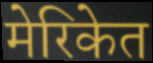
मेरिकेत